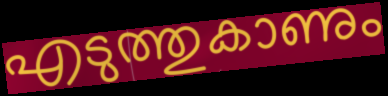
എടുത്തുകാണും